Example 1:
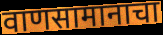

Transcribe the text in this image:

वाणसामानाचा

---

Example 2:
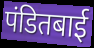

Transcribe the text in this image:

पंडितबाई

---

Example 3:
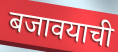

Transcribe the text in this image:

बजावयाची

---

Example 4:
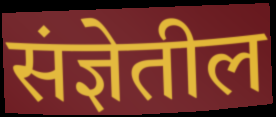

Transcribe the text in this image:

संज्ञेतील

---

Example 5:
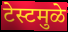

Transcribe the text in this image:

टेस्टमुळे